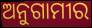
ଅନୁଗାମୀର